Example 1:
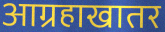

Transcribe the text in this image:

आग्रहाखातर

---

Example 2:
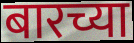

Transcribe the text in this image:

बारच्या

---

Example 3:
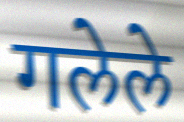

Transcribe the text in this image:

गलेले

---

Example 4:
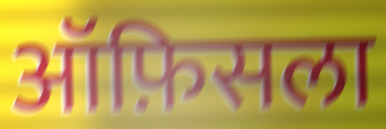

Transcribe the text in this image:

ऑफ़िसला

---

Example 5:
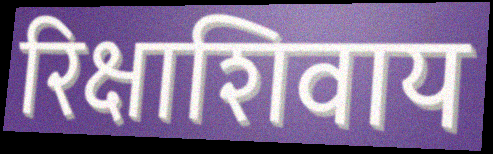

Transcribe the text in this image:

रिक्षाशिवाय